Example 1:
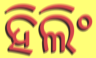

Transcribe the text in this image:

ହିଲିଂ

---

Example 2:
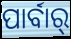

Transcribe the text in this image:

ପାର୍ବାର୍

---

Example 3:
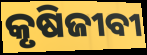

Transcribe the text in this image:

କୃଷିଜୀବୀ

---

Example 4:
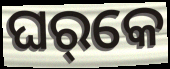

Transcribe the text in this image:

ଘର୍‌କେ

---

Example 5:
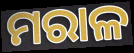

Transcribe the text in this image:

ମରାଳ